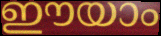
ഈയാം